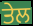
ਤੇਲ